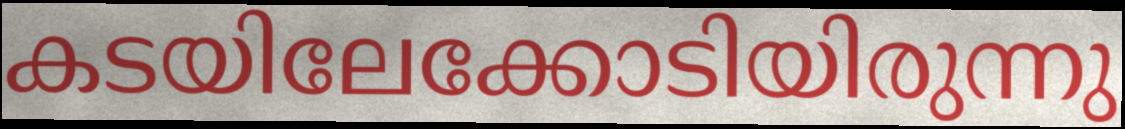
കടയിലേക്കോടിയിരുന്നു